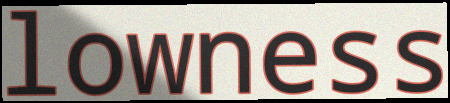
lowness